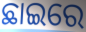
ଛାଇରେ